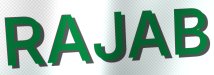
RAJAB